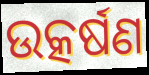
ଉତ୍କର୍ଷଣ